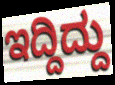
ಇದ್ದಿದ್ದು